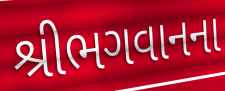
શ્રીભગવાનના